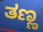
ತಣ್ಣ